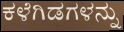
ಕಳೆಗಿಡಗಳನ್ನು